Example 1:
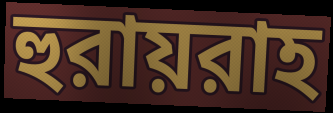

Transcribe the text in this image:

হুরায়রাহ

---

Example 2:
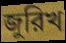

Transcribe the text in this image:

জুরিখ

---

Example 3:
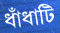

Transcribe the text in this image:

ধাঁধাটি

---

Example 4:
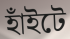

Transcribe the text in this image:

হাঁইটে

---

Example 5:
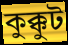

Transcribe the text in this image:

কুক্কুট